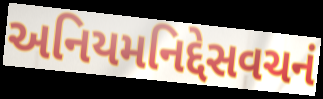
અનિયમનિદ્દેસવચનં